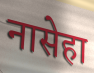
नासेहा